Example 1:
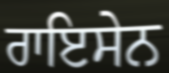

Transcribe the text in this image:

ਰਾਇਸੇਨ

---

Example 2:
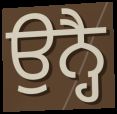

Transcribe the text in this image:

ਉਨ੍ਹੈ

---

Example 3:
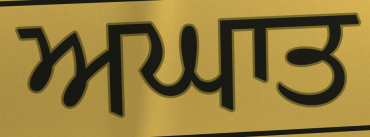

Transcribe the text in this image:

ਅਘਾਤ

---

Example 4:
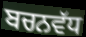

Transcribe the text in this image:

ਬਚਨਵੱਧ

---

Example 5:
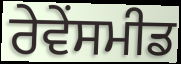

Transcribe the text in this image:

ਰੇਵੇਂਸਮੀਡ